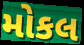
મોકલ